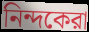
নিন্দকেরা